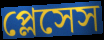
প্লেসেস